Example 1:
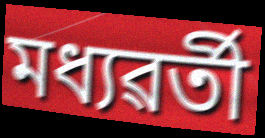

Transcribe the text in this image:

মধ্যৱৰ্তী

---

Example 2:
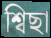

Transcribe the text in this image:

শ্বিছা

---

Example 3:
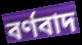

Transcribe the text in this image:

বৰ্ণবাদ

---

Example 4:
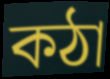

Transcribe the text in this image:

কঠা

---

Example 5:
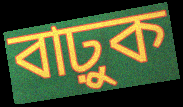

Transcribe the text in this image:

বাঢ়ুক